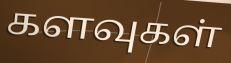
களவுகள்